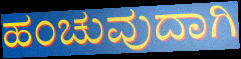
ಹಂಚುವುದಾಗಿ